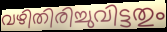
വഴിതിരിച്ചുവിട്ടതും